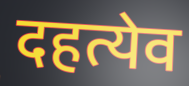
दहत्येव